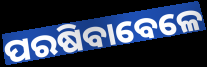
ପରଷିବାବେଳେ